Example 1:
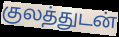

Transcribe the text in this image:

குலத்துடன்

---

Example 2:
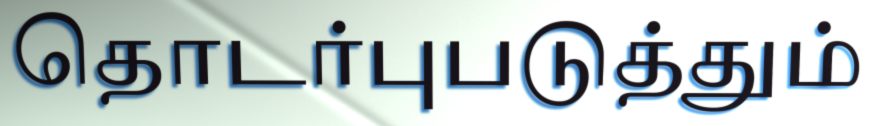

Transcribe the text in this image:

தொடர்புபடுத்தும்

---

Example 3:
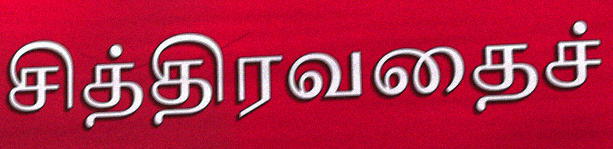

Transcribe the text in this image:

சித்திரவதைச்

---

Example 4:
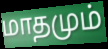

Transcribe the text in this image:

மாதமும்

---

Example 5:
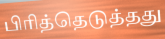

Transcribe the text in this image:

பிரித்தெடுத்தது